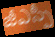
జీఎస్పీ